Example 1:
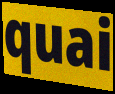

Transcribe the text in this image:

quai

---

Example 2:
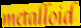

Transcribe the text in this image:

metalloid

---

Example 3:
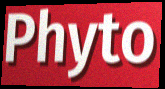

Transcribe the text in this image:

Phyto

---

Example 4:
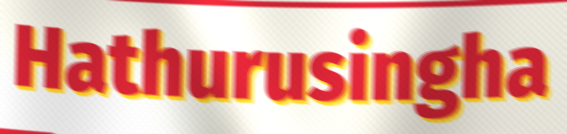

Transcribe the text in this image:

Hathurusingha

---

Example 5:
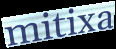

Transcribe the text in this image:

mitixa